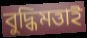
বুদ্ধিমত্তাই